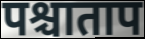
पश्चाताप